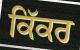
ਕਿੱਕਰ